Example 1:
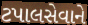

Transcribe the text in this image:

ટપાલસેવાને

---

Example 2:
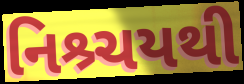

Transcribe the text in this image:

નિશ્ર્ચયથી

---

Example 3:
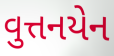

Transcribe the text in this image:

વુત્તનયેન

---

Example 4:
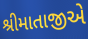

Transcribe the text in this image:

શ્રીમાતાજીએ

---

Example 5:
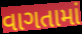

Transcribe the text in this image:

વાગતામાં